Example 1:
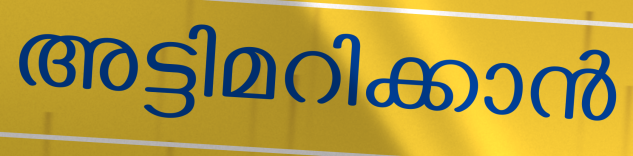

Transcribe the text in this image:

അട്ടിമറിക്കാൻ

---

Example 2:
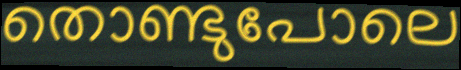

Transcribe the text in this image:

തൊണ്ടുപോലെ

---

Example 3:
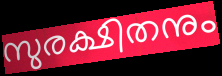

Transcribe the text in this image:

സുരക്ഷിതനും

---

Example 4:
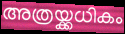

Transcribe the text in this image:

അത്രയ്ക്കധികം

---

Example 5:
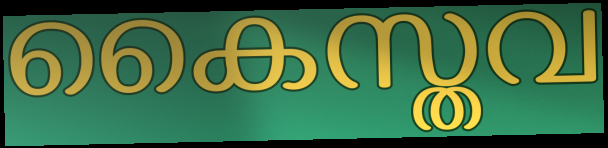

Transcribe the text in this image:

കൈസ്തവ